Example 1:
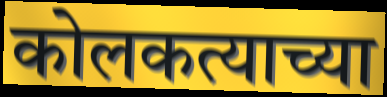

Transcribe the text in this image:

कोलकत्याच्या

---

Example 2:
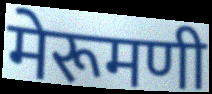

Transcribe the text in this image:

मेरूमणी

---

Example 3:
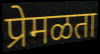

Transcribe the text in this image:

प्रेमळता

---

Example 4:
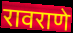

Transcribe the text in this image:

रावराणे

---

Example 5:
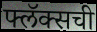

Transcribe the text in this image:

फ्लॅक्सची